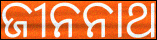
ଜୀନନାଥ